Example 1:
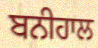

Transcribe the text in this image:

ਬਨੀਹਾਲ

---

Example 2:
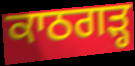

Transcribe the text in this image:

ਕਾਠਗਡ਼੍ਹ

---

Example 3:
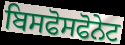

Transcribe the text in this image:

ਬਿਸਫੋਸਫੋਨੇਟ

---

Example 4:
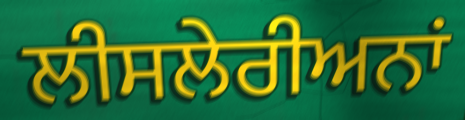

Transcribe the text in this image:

ਲੀਸਲੇਰੀਅਨਾਂ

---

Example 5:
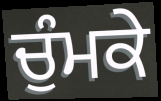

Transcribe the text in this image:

ਚੁੰਮਕੇ